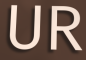
UR